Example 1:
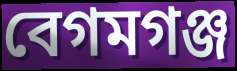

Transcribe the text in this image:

বেগমগঞ্জ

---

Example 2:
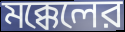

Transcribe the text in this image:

মক্কেলের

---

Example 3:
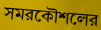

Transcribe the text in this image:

সমরকৌশলের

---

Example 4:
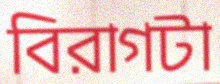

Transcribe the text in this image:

বিরাগটা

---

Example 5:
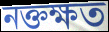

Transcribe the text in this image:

নক্তক্ষত